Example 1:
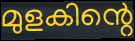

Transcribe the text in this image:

മുളകിന്റെ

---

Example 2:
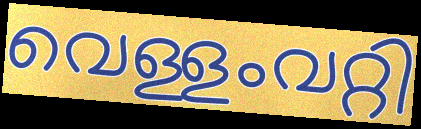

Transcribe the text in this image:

വെള്ളംവറ്റി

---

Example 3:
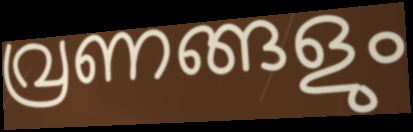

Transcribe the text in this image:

വ്രണങ്ങളും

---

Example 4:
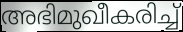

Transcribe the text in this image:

അഭിമുഖീകരിച്ച്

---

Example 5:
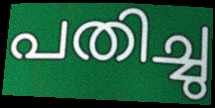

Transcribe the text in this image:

പതിച്ചു